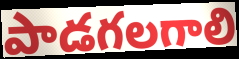
పాడగలగాలి